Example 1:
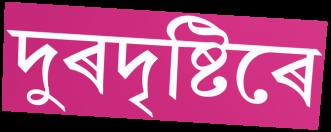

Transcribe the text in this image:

দুৰদৃষ্টিৰে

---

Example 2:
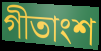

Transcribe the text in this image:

গীতাংশ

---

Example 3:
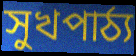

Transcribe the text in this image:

সুখপাঠ্য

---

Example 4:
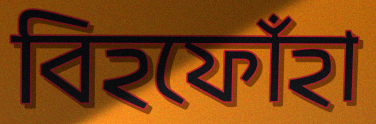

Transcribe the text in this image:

বিহফোঁহা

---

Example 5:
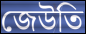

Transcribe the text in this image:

জেউতি